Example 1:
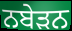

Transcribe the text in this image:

ਨਬੇੜਨ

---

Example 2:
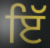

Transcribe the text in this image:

ਇੱ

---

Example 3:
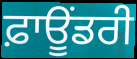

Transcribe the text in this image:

ਫ਼ਾਊਂਡਰੀ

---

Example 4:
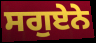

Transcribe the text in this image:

ਸਗੁਏਨੇ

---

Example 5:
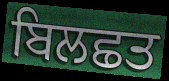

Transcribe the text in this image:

ਬਿਲਛਤ